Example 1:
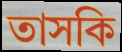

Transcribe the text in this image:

তাসকি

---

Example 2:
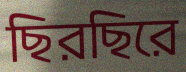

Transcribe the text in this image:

ছিরছিরে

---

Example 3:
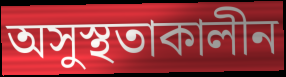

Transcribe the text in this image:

অসুস্থতাকালীন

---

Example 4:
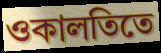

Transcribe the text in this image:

ওকালতিতে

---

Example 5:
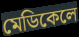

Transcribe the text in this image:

মেডিকেলে